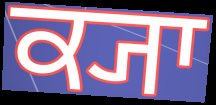
ਕ੍ਯਾ